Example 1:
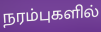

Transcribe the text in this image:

நரம்புகளில்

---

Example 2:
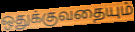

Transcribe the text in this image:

ஒதுக்குவதையும்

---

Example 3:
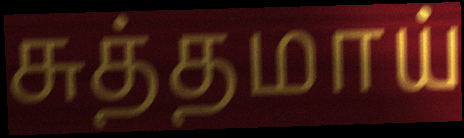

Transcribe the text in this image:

சுத்தமாய்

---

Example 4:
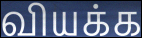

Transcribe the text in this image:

வியக்க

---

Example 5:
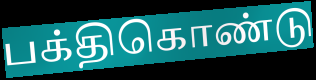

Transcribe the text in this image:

பக்திகொண்டு